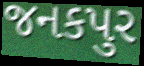
જનકપુર